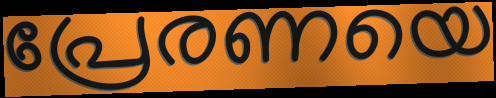
പ്രേരണയെ